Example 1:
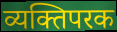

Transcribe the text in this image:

व्यक्तिपरक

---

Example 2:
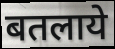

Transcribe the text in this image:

बतलाये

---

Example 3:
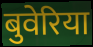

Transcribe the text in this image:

बुवेरिया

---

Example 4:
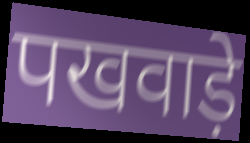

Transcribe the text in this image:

पखवाड़े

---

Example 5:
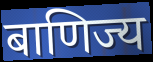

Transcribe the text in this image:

बाणिज्य